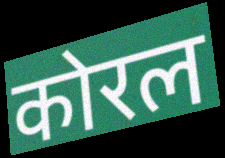
कोरल